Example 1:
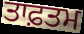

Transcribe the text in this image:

ਤਾਫ਼ਤਮ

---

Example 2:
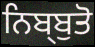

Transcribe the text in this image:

ਨਿਬ੍ਬੁਤੋ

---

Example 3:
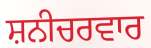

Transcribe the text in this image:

ਸ਼ਨੀਚਰਵਾਰ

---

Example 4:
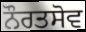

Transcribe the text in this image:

ਨੌਰਤਸੋਵ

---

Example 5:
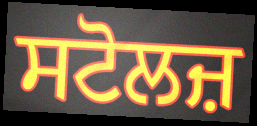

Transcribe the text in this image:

ਸਟੋਲਜ਼